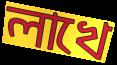
লাখে